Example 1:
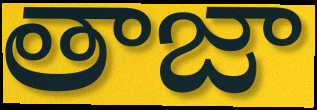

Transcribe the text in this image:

తాజా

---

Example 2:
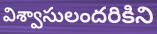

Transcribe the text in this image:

విశ్వాసులందరికిని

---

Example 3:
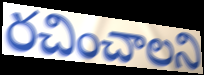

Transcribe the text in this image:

రచించాలని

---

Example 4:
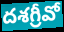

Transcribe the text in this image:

దశగ్రీవో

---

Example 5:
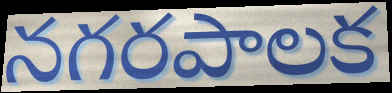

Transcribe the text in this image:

నగరపాలక